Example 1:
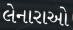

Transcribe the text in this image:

લેનારાઓ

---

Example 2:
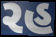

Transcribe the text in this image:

રહ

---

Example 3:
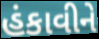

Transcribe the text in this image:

હંકાવીને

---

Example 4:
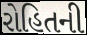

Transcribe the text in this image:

રોહિતની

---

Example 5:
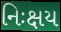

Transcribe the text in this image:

નિઃક્ષય